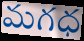
మగధ